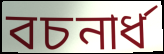
বচনার্ধ